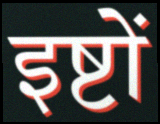
इष्टों